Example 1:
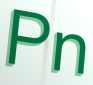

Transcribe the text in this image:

Pn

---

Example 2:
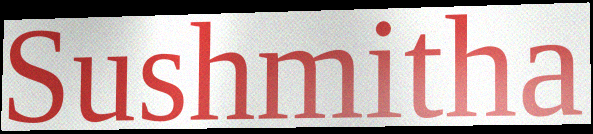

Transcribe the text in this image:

Sushmitha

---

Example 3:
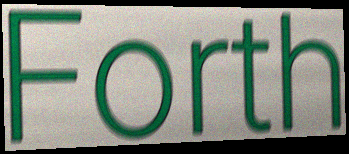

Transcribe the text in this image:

Forth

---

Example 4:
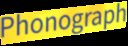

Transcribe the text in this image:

Phonograph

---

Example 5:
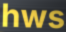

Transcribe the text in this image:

hws